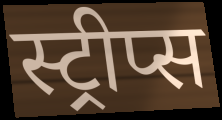
स्ट्रीप्स